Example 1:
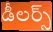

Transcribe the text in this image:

డీలర్స్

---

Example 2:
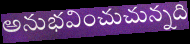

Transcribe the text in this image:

అనుభవించుచున్నది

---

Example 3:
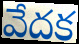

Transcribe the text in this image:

వేదక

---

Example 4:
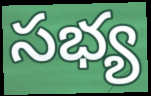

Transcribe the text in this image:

సభ్య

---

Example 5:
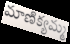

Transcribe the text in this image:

మాణిక్యమ్మ